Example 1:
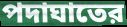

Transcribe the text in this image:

পদাঘাতের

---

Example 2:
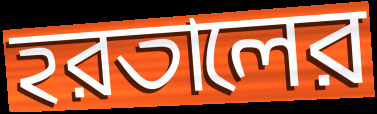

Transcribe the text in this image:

হরতালের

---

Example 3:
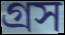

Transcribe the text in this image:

গ্রস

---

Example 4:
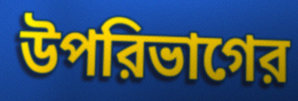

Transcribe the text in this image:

উপরিভাগের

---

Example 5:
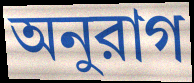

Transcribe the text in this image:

অনুরাগ